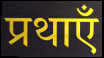
प्रथाएँ